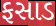
ફસાડ